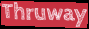
Thruway